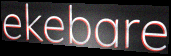
ekebare